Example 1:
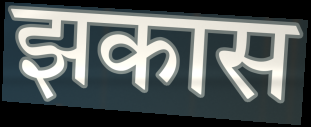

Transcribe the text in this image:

झकास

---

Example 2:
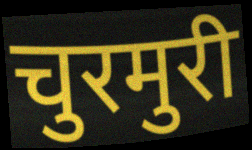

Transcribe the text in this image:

चुरमुरी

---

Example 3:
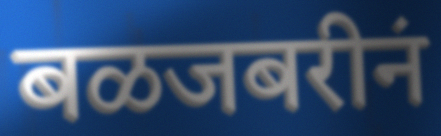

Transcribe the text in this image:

बळजबरीनं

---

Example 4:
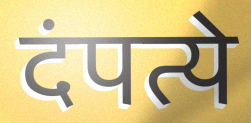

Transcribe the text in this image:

दंपत्ये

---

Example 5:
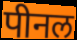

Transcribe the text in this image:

पीनल